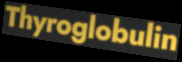
Thyroglobulin